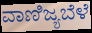
ವಾಣಿಜ್ಯಬೆಳೆ